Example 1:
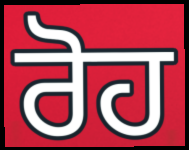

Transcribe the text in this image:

ਰੋਹ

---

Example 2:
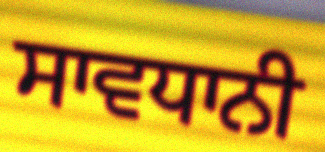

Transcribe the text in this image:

ਸਾਵਧਾਨੀ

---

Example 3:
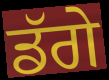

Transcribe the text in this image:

ਡੱਗੇ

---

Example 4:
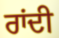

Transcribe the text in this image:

ਰਾਂਦੀ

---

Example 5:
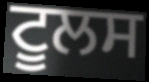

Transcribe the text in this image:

ਟੂਲਸ